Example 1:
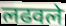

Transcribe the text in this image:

लढवले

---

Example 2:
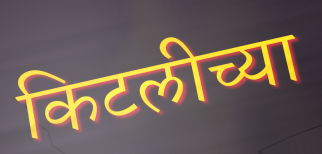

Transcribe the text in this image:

किटलीच्या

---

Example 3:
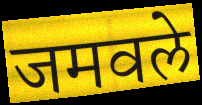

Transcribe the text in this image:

जमवले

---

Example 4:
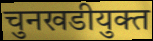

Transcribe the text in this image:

चुनखडीयुक्त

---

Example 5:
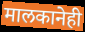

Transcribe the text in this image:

मालकानेही